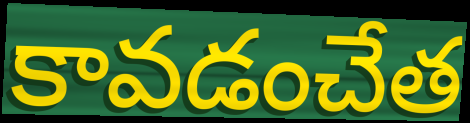
కావడంచేత